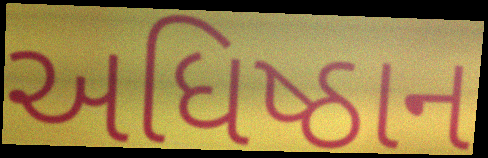
અધિષ્ઠાન